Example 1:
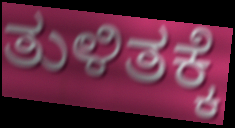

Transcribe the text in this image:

ತುಳಿತಕ್ಕೆ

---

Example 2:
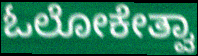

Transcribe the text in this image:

ಓಲೋಕೇತ್ವಾ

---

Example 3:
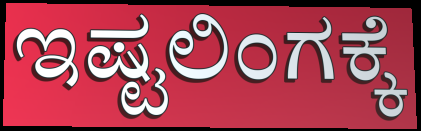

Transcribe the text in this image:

ಇಷ್ಟಲಿಂಗಕ್ಕೆ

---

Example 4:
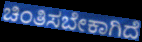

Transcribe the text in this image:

ಚಿಂತಿಸಬೇಕಾಗಿದೆ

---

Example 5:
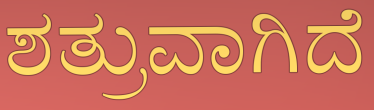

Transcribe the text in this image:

ಶತ್ರುವಾಗಿದೆ